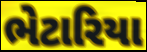
ભેટારિયા